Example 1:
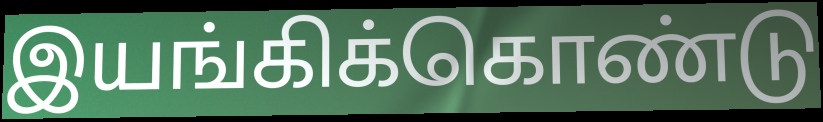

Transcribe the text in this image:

இயங்கிக்கொண்டு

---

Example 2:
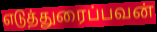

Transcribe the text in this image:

எடுத்துரைப்பவன்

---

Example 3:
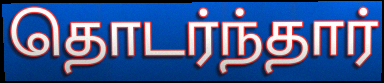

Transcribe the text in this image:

தொடர்ந்தார்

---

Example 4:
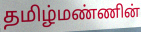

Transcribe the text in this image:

தமிழ்மண்ணின்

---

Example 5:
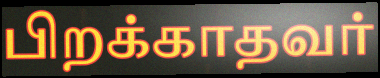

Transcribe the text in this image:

பிறக்காதவர்